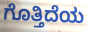
ಗೊತ್ತಿದೆಯ